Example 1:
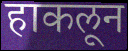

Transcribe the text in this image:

हाकलून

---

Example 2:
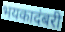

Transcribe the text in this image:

भयकादंबरी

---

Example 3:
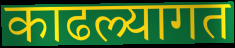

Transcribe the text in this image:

काढल्यागत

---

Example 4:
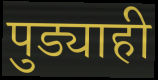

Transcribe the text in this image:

पुड्याही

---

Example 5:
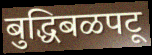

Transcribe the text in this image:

बुद्धिबळपटू